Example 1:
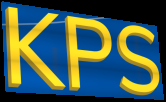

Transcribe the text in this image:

KPS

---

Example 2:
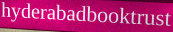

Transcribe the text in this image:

hyderabadbooktrust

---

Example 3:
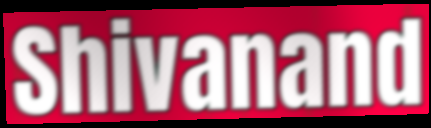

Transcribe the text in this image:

Shivanand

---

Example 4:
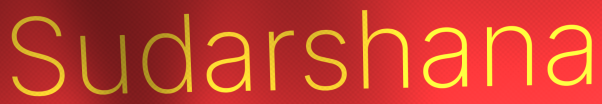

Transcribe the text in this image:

Sudarshana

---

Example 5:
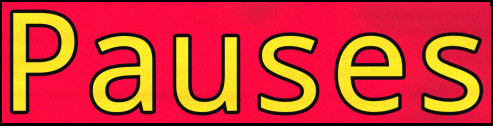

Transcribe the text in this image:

Pauses